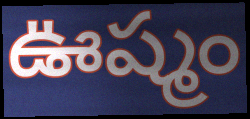
ఊష్మం